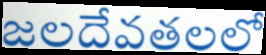
జలదేవతలలో